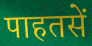
पाहतसें